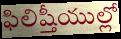
ఫిలిష్తీయుల్లో